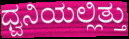
ಧ್ವನಿಯಲ್ಲಿತ್ತು